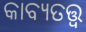
କାବ୍ୟତତ୍ତ୍ୱ